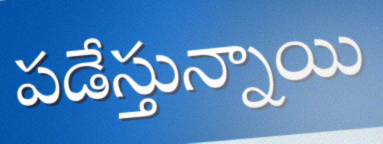
పడేస్తున్నాయి